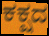
ಕಕ್ಷದ